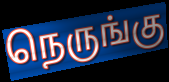
நெருங்கு